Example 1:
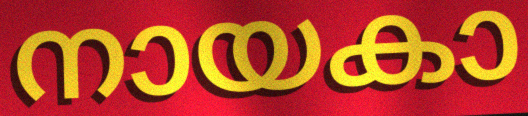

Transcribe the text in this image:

നായകാ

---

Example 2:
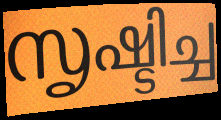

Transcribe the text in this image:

സൃഷ്ടിച്ച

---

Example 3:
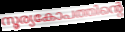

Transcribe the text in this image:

സൂര്യകോപത്തിന്റെ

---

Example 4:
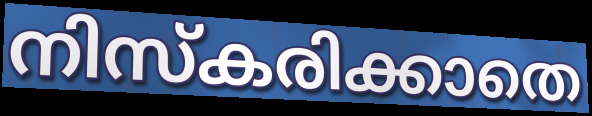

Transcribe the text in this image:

നിസ്കരിക്കാതെ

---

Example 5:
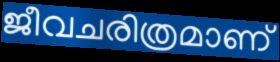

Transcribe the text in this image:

ജീവചരിത്രമാണ്